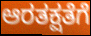
ಆರತಕ್ಷತೆಗೆ